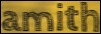
amith